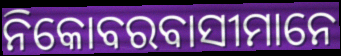
ନିକୋବରବାସୀମାନେ